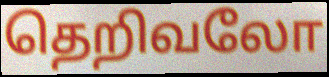
தெறிவலோ